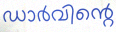
ഡാർവിന്റെ